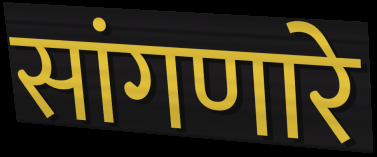
सांगणारे